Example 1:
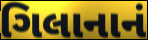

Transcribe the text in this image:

ગિલાનાનં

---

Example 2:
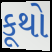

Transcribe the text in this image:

કૂથો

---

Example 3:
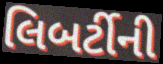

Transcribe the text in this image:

લિબર્ટીની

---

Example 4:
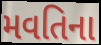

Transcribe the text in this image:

મવતિના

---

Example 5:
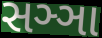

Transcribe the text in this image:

સઞ્ઞા